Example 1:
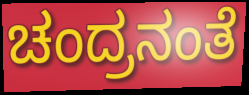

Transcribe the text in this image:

ಚಂದ್ರನಂತೆ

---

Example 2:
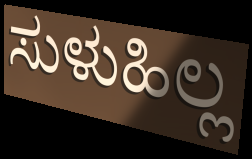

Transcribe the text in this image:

ಸುಳುಹಿಲ್ಲ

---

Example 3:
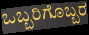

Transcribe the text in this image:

ಒಬ್ಬರಿಗೊಬ್ಬರ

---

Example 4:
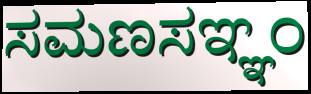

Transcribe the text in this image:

ಸಮಣಸಞ್ಞಂ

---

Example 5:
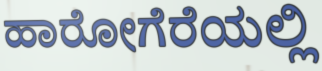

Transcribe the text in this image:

ಹಾರೋಗೆರೆಯಲ್ಲಿ